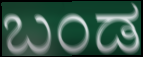
ಬಂಡ